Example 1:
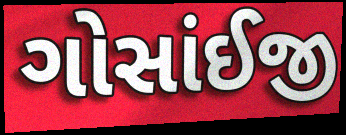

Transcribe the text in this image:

ગોસાંઈજી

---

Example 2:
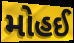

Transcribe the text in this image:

મોહઈ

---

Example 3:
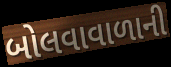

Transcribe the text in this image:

બોલવાવાળાની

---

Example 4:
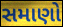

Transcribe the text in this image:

સમાણો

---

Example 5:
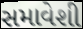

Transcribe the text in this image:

સમાવેશી